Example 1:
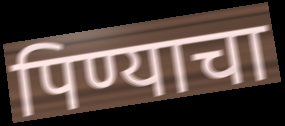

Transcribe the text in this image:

पिण्याचा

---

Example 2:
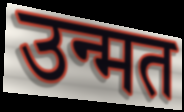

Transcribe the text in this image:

उन्मत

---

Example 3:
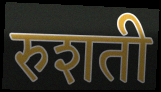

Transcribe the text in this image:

रुशती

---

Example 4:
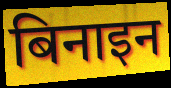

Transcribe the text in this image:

बिनाइन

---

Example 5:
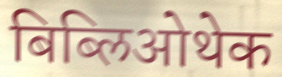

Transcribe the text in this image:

बिब्लिओथेक